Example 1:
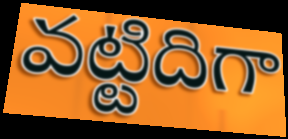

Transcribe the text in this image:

వట్టిదిగా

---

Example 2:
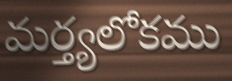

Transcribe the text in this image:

మర్త్యలోకము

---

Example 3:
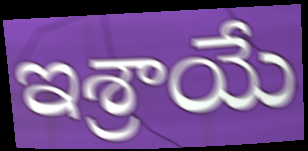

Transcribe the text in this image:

ఇశ్రాయే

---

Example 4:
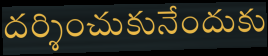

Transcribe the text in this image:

దర్శించుకునేందుకు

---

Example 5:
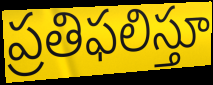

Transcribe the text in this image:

ప్రతిఫలిస్తూ